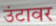
उंटावर